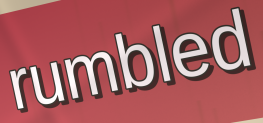
rumbled